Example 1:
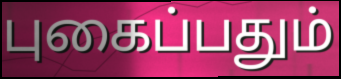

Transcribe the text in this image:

புகைப்பதும்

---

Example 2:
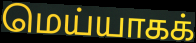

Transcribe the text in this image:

மெய்யாகக்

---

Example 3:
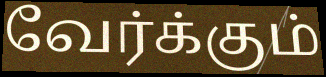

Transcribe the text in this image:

வேர்க்கும்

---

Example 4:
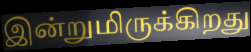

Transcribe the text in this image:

இன்றுமிருக்கிறது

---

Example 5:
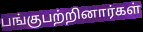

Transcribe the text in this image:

பங்குபற்றினார்கள்